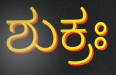
ಶುಕ್ರಃ